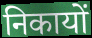
निकायों